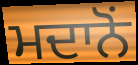
ਮਦਾਨੋਂ